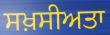
ਸਖ਼ਸੀਅਤਾ